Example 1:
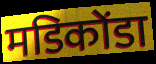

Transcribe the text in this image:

मडिकोंडा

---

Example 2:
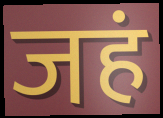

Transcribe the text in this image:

जहं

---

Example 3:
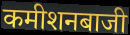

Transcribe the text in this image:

कमीशनबाजी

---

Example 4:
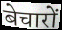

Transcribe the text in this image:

बेचारों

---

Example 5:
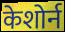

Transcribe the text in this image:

केशोर्न